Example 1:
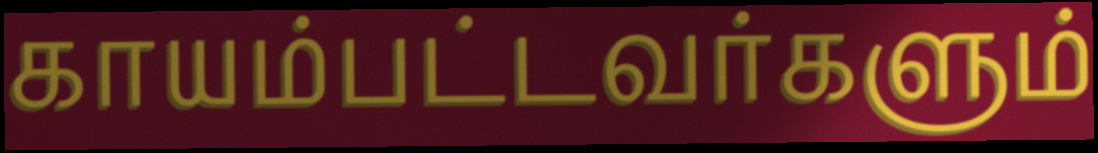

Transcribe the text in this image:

காயம்பட்டவர்களும்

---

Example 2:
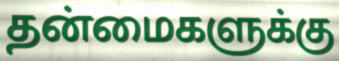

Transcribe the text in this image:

தன்மைகளுக்கு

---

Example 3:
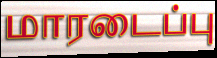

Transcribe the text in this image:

மாரடைப்பு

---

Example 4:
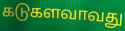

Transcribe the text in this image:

கடுகளவாவது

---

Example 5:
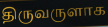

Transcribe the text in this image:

திருவருளாக